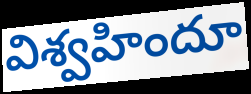
విశ్వహిందూ